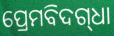
ପ୍ରେମବିଦଗ୍‍ଧା